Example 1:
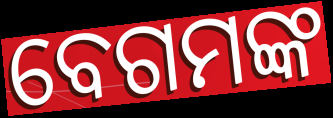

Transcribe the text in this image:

ବେଗମଙ୍କ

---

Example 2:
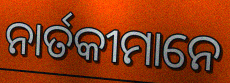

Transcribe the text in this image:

ନାର୍ତକୀମାନେ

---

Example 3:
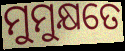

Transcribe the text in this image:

ମୁମୁକ୍ଷତେ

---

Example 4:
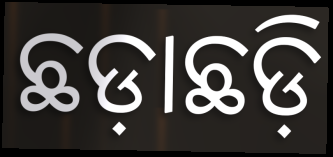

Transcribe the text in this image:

ଛଡ଼ାଛଡ଼ି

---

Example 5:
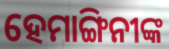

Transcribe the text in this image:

ହେମାଙ୍ଗିନୀଙ୍କ